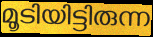
മൂടിയിട്ടിരുന്ന